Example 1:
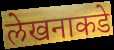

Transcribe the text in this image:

लेखनाकडे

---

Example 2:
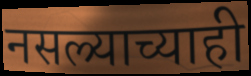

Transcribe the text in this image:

नसल्याच्याही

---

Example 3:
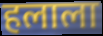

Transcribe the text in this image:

हलाला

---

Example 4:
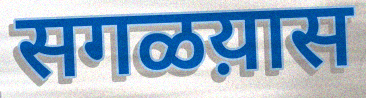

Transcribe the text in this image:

सगळय़ास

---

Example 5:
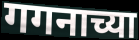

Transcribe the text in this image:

गगनाच्या